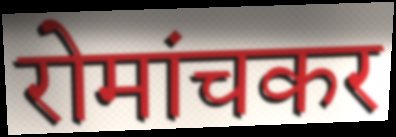
रोमांचकर